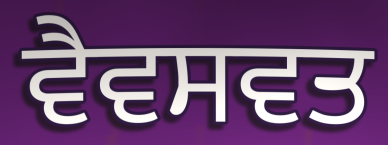
ਵੈਵਸਵਤ